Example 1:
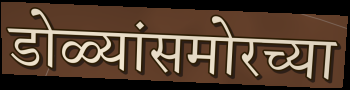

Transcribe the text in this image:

डोळ्यांसमोरच्या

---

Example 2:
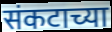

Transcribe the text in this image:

संकटाच्या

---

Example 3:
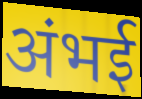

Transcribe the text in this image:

अंभई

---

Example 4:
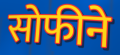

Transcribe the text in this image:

सोफीने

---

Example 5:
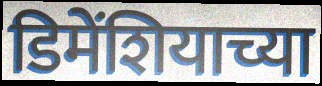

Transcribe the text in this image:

डिमेंशियाच्या